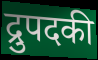
द्रुपदकी